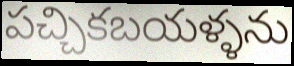
పచ్చికబయళ్ళను